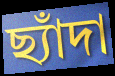
ছ্যাঁদা